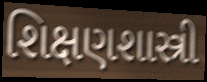
શિક્ષણશાસ્ત્રી